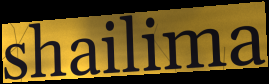
shailima